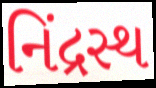
નિંદ્રસ્થ